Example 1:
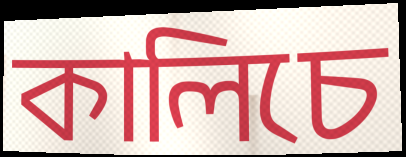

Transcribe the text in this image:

কালিচে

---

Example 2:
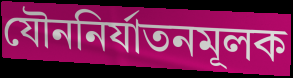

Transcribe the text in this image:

যৌননির্যাতনমূলক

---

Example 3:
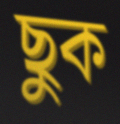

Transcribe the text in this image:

ছুক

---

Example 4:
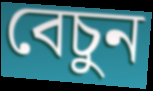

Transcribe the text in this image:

বেচুন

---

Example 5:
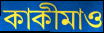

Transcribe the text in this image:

কাকীমাও